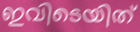
ഇവിടെയിത്